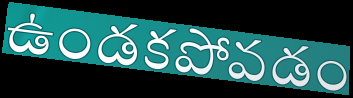
ఉండకపోవడం